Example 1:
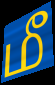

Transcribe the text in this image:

மீ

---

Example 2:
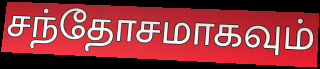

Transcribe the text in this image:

சந்தோசமாகவும்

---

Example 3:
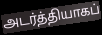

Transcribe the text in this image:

அடர்த்தியாகப்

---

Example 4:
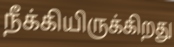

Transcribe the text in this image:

நீக்கியிருக்கிறது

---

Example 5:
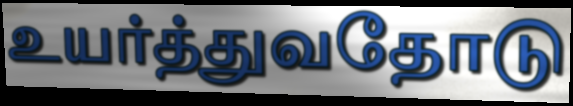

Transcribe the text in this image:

உயர்த்துவதோடு